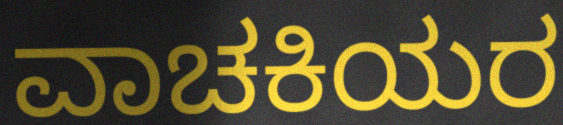
ವಾಚಕಿಯರ